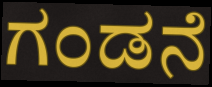
ಗಂಡನೆ